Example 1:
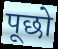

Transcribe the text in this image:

पूछो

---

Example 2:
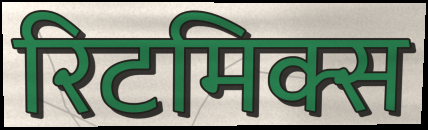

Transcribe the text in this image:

रिटमिक्स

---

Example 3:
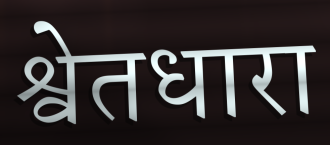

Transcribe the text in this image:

श्वेतधारा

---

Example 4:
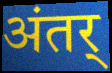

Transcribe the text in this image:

अंतर्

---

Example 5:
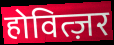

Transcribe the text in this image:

होवित्ज़र